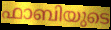
ഫാബിയുടെ